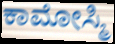
ಕಾಮೋಸ್ಮಿ